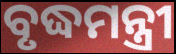
ବୃଦ୍ଧମନ୍ତ୍ରୀ